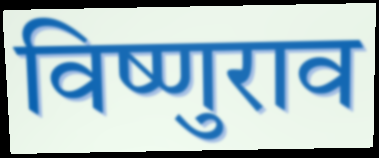
विष्णुराव